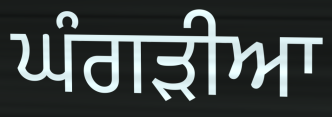
ਘੰਗੜੀਆ